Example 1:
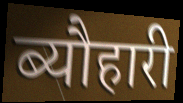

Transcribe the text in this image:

ब्यौहारी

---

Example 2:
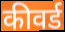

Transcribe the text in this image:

कीवर्ड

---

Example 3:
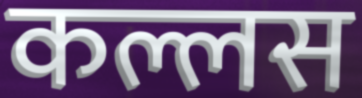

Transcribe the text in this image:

कल्लस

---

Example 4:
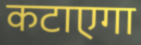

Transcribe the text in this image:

कटाएगा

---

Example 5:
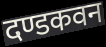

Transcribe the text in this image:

दण्डकवन